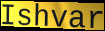
Ishvar